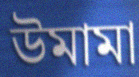
উমামা